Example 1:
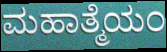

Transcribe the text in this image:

ಮಹಾತ್ಮೆಯಂ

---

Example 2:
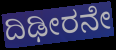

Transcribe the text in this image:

ದಿಢೀರನೇ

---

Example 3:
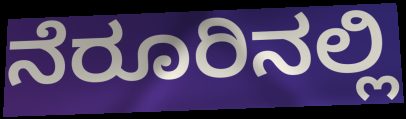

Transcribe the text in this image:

ನೆರೂರಿನಲ್ಲಿ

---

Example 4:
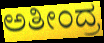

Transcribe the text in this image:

ಅತೀಂದ್ರ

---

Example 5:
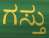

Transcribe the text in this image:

ಗಸ್ತು